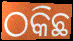
ଠକିଛ